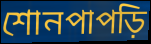
শোনপাপড়ি